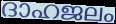
ദാഹജലം